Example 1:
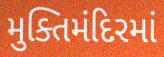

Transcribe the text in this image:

મુક્તિમંદિરમાં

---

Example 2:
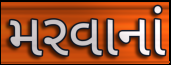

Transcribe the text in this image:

મરવાનાં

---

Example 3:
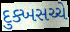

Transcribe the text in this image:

દુક્ખસચ્ચે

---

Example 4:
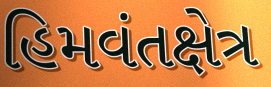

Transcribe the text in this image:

હિમવંતક્ષેત્ર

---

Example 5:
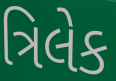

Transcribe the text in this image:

ત્રિલેક